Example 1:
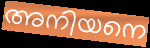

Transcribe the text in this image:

അനിയനെ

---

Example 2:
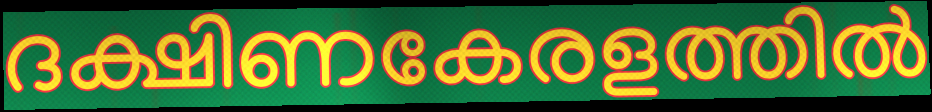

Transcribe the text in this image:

ദക്ഷിണകേരളത്തിൽ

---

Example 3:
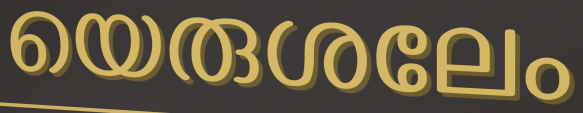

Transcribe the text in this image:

യെരുശലേം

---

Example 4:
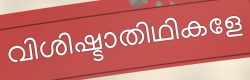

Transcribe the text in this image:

വിശിഷ്ടാതിഥികളേ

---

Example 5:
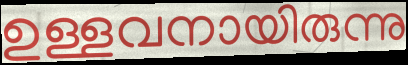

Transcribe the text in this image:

ഉള്ളവനായിരുന്നു